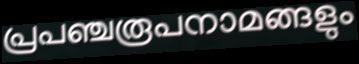
പ്രപഞ്ചരൂപനാമങ്ങളും